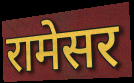
रामेसर